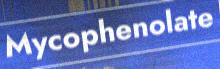
Mycophenolate